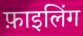
फ़ाइलिंग